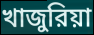
খাজুরিয়া